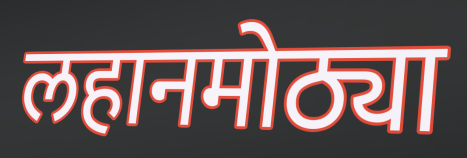
लहानमोठ्या